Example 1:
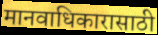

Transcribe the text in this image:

मानवाधिकारासाठी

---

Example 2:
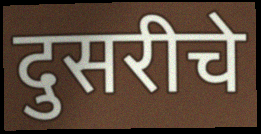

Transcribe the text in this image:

दुसरीचे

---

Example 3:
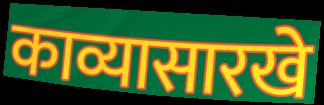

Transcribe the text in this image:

काव्यासारखे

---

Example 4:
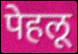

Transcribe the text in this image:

पेहलू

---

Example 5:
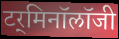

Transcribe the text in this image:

टर्मिनॉलॉजी